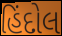
હિંદોલ